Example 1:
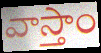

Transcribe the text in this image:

వాస్తాం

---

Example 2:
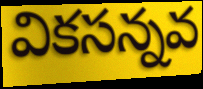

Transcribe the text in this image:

వికసన్నవ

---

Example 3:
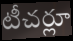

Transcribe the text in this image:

టీచర్లూ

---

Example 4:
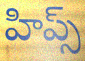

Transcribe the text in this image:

హిప్స్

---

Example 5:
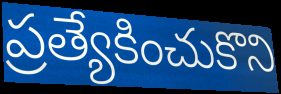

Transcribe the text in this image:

ప్రత్యేకించుకొని